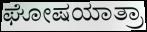
ಘೋಷಯಾತ್ರಾ